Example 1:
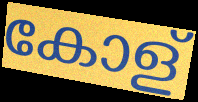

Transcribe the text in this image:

കോള്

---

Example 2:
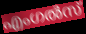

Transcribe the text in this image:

എംഗൽസ്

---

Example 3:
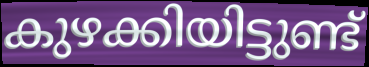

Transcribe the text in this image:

കുഴക്കിയിട്ടുണ്ട്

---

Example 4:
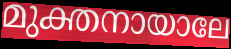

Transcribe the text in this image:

മുക്തനായാലേ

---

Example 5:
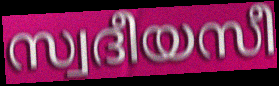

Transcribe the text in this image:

സ്വദീയസീ